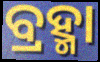
ବ୍ରହ୍ମା